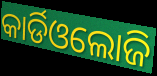
କାର୍ଡିଓଲୋଜି